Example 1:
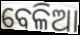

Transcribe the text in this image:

ବେଳିଆ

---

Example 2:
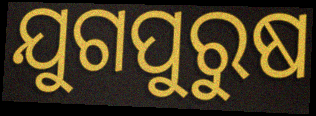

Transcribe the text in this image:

ଯୁଗପୁରୁଷ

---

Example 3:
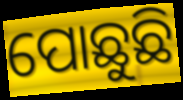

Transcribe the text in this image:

ପୋଛୁଛି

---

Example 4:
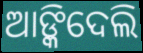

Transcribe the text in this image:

ଆଙ୍କିଦେଲି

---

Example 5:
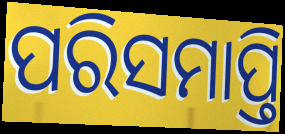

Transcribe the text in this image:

ପରିସମାପ୍ତି